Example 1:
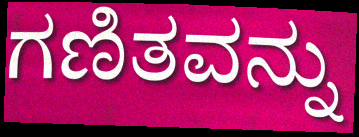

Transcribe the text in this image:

ಗಣಿತವನ್ನು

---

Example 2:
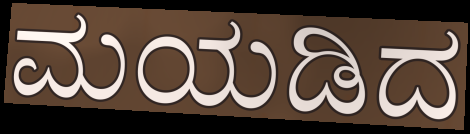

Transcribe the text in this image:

ಮಯಡಿದ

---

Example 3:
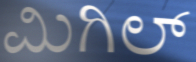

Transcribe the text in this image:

ಮಿಗಿಲ್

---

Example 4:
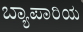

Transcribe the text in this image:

ಬ್ಯಾಪಾರಿಯ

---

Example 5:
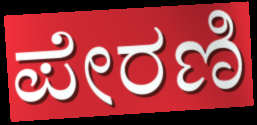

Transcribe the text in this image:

ಪೇರಣಿ